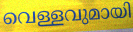
വെള്ളവുമായി